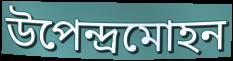
উপেন্দ্রমোহন